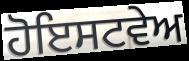
ਹੋਇਸਟਵੇਅ